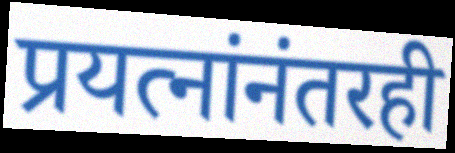
प्रयत्नांनंतरही